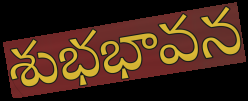
శుభభావన